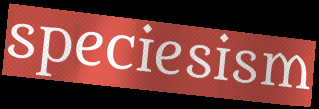
speciesism